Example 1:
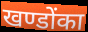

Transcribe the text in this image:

खण्डोंका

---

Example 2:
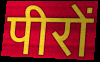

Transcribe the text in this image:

पीरों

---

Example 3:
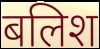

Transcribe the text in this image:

बलिश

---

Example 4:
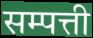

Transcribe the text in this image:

सम्पत्ती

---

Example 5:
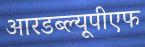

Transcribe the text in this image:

आरडब्ल्यूपीएफ